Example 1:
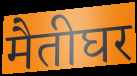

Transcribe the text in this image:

मैतीघर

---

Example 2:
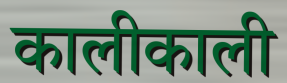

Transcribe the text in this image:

कालीकाली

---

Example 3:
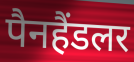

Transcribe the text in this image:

पैनहैंडलर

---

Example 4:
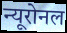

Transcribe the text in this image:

न्यूरोनल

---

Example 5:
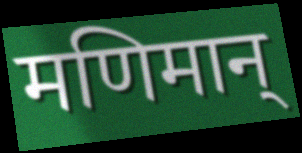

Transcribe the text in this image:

मणिमान्